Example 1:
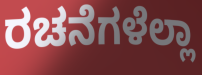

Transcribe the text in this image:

ರಚನೆಗಳೆಲ್ಲಾ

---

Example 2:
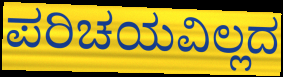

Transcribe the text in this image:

ಪರಿಚಯವಿಲ್ಲದ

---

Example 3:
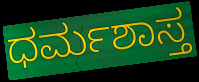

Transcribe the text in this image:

ಧರ್ಮಶಾಸ್ತ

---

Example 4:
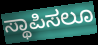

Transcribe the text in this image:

ಸ್ಥಾಪಿಸಲೂ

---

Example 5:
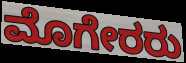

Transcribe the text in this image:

ಮೊಗೇರರು